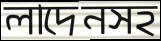
লাদেনসহ